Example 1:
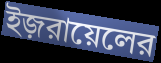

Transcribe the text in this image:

ইজ়রায়েলের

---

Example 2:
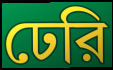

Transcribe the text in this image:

ঢেরি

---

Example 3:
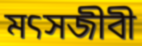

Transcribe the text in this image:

মৎসজীবী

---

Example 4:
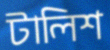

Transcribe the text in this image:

টালিশ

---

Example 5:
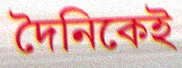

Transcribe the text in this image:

দৈনিকেই